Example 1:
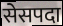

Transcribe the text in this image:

सेसपदा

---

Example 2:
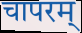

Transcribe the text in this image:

चापरम्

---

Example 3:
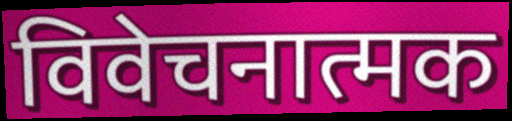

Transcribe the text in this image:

विवेचनात्‍मक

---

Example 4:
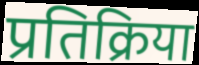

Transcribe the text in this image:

प्रतिक्रिया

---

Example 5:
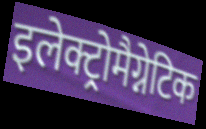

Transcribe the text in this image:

इलेक्ट्रोमैग्नेटिक